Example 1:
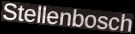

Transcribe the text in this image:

Stellenbosch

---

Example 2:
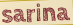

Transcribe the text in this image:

sarina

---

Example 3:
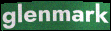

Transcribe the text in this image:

glenmark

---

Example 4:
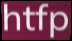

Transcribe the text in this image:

htfp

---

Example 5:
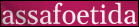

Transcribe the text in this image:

assafoetida